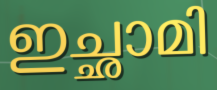
ഇച്ഛാമി